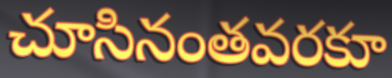
చూసినంతవరకూ